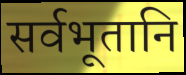
सर्वभूतानि